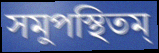
সমুপস্থিতম্